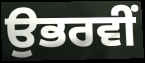
ਉਭਰਵੀਂ